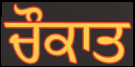
ਚੌਕਾਤ